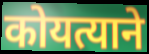
कोयत्याने